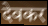
देवकर